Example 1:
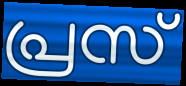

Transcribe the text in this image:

പ്രസ്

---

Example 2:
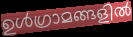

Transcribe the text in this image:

ഉൾഗ്രാമങ്ങളിൽ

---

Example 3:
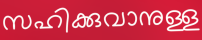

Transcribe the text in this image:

സഹിക്കുവാനുള്ള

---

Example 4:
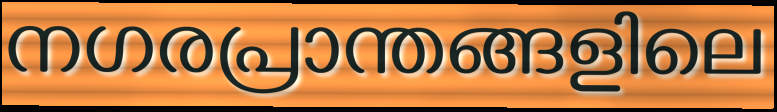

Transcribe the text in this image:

നഗരപ്രാന്തങ്ങളിലെ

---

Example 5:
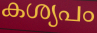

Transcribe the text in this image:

കശ്യപം